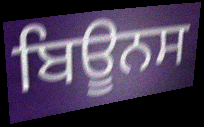
ਬਿਊਨਸ